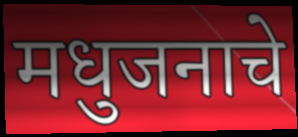
मधुजनाचे